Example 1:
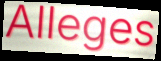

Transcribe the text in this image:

Alleges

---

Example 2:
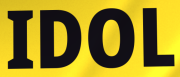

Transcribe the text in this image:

IDOL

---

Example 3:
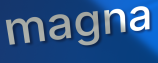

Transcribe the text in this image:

magna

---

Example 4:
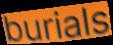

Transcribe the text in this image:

burials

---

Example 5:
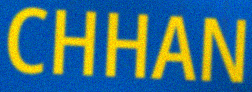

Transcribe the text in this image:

CHHAN